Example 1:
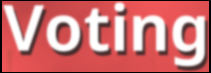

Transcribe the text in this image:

Voting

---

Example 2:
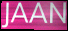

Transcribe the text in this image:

JAAN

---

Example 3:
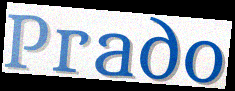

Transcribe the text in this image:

Prado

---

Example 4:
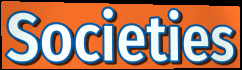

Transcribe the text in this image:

Societies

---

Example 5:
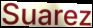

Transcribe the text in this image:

Suarez